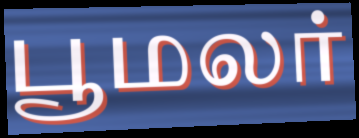
பூமலர்